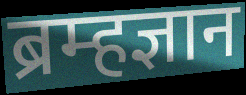
ब्रम्हज्ञान